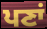
ਪਣਾਂ